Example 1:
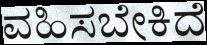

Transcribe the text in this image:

ವಹಿಸಬೇಕಿದೆ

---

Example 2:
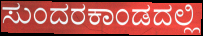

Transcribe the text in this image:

ಸುಂದರಕಾಂಡದಲ್ಲಿ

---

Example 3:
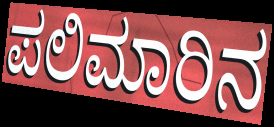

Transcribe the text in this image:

ಪಲಿಮಾರಿನ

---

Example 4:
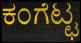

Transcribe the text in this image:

ಕಂಗೆಟ್ಟ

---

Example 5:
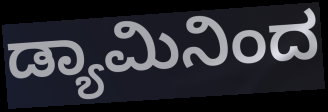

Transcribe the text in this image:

ಡ್ಯಾಮಿನಿಂದ